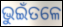
ଭୁଇଁତଳେ